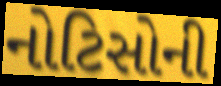
નોટિસોની